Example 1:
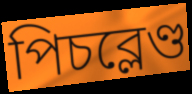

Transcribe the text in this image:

পিচব্লেণ্ড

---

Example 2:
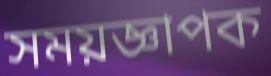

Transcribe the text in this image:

সময়জ্ঞাপক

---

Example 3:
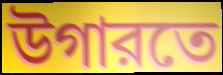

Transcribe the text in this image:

উগারতে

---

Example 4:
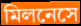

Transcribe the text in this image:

মিলনেসে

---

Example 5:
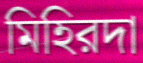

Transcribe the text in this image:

মিহিরদা